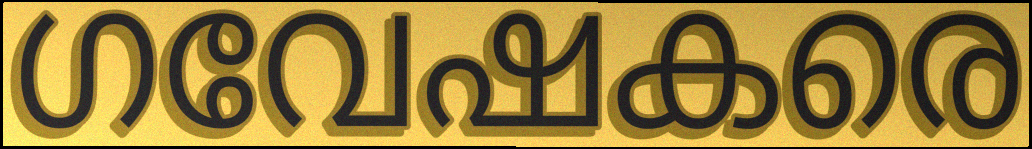
ഗവേഷകരെ